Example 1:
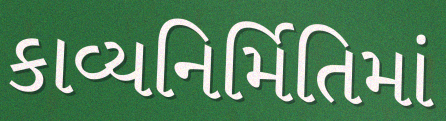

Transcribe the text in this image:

કાવ્યનિર્મિતિમાં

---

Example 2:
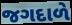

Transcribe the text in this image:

જગદાળે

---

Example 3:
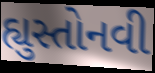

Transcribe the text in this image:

હ્યુસ્તોનવી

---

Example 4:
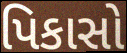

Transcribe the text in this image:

પિકાસો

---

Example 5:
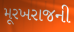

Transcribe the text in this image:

મૂરખરાજની